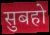
सुबहो